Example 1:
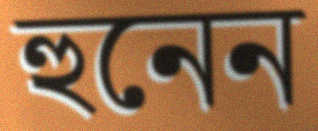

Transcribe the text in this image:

হুনেন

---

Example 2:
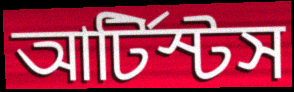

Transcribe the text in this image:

আর্টিস্টস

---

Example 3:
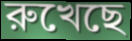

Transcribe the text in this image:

রুখেছে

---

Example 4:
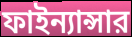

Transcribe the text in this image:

ফাইন্যান্সার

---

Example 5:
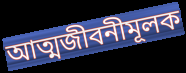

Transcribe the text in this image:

আত্মজীবনীমূলক